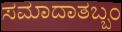
ಸಮಾದಾತಬ್ಬಂ